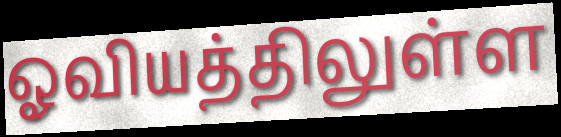
ஓவியத்திலுள்ள